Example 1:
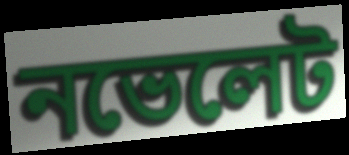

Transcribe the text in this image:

নভেলেট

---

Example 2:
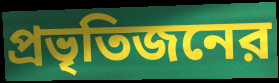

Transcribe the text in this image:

প্রভৃতিজনের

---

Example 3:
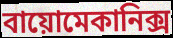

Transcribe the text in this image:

বায়োমেকানিক্স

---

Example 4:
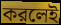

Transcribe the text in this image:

করলেই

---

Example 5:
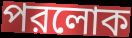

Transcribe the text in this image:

পরলোক